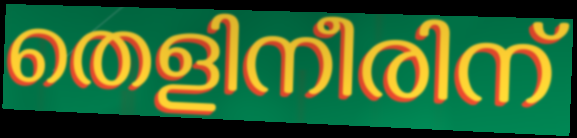
തെളിനീരിന്